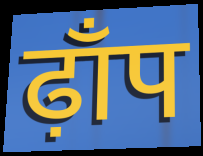
ढ़ाँप